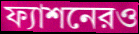
ফ্যাশনেরও